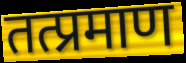
तत्प्रमाण